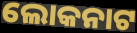
ଲୋକନାଟ